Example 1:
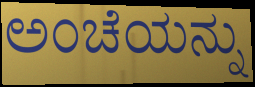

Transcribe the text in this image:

ಅಂಚೆಯನ್ನು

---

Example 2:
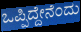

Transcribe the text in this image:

ಒಪ್ಪಿದ್ದೇನೆಂದು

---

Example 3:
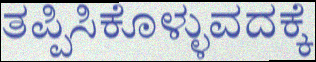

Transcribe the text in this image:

ತಪ್ಪಿಸಿಕೊಳ್ಳುವದಕ್ಕೆ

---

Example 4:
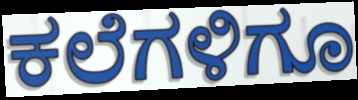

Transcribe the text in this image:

ಕಲೆಗಳಿಗೂ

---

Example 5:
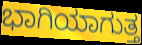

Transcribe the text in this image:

ಭಾಗಿಯಾಗುತ್ತ